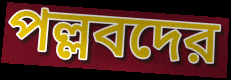
পল্লবদের